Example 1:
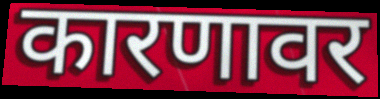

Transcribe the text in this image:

कारणावर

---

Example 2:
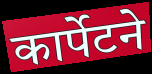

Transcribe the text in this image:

कार्पेटने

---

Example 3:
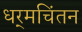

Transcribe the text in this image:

धर्मचिंतन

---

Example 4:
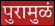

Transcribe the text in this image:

पुरामुळं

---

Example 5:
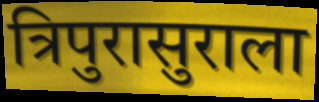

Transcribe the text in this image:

त्रिपुरासुराला